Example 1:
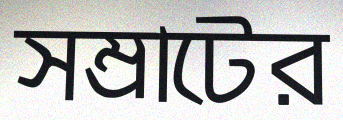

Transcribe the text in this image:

সম্রাটের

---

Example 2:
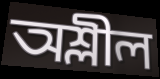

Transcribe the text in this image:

অশ্লীল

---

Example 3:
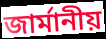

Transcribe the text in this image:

জার্মানীয়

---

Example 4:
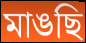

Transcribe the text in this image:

মাঙছি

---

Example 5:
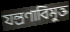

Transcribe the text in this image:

যন্ত্রণাবিমুক্ত